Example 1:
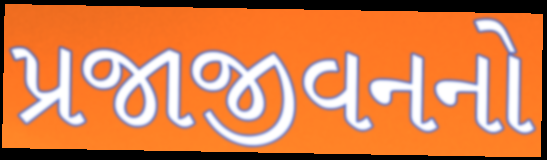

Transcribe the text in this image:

પ્રજાજીવનનો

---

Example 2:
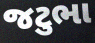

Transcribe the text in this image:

જટુભા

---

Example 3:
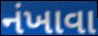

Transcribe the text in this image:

નંખાવા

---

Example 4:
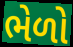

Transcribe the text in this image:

ભેળો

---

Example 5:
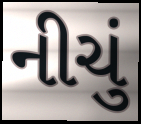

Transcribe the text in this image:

નીચું